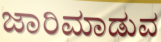
ಜಾರಿಮಾಡುವ